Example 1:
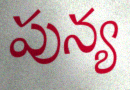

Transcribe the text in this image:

పున్య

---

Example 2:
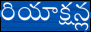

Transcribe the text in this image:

రియాక్షన్ల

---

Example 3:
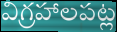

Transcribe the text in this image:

విగ్రహాలపట్ల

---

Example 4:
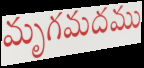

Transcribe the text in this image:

మృగమదము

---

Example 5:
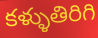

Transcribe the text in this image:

కళ్ళుతిరిగి